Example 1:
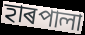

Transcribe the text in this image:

হাৰপালা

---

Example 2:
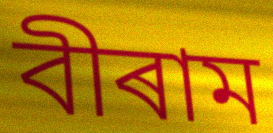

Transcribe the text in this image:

বীৰাম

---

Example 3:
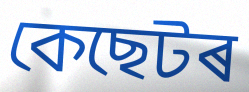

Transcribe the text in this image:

কেছেটৰ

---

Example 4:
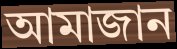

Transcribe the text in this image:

আমাজান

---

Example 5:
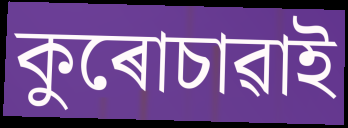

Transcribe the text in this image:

কুৰোচাৱাই